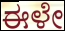
ಈಳೇ